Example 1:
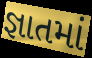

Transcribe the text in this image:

જ્ઞાતમાં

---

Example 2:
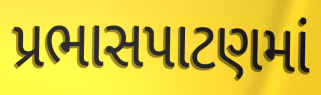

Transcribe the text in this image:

પ્રભાસપાટણમાં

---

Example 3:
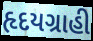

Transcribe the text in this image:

હૃદયગ્રાહી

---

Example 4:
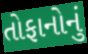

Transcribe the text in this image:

તોફાનોનું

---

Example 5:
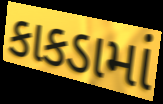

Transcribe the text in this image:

કાકડામાં